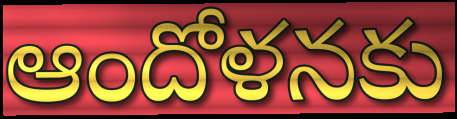
ఆందోళనకు